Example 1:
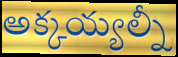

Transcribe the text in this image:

అక్కయ్యల్నీ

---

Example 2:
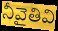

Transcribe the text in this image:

నీవైతివి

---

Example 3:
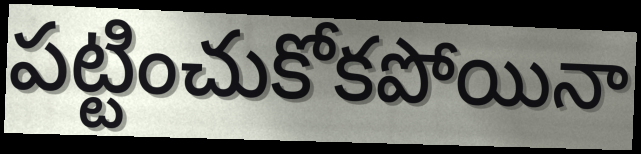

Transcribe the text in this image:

పట్టించుకోకపోయినా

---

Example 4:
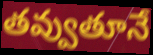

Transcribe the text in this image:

తవ్వుతూనే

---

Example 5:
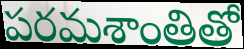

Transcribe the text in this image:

పరమశాంతితో